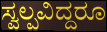
ಸ್ವಲ್ಪವಿದ್ದರೂ